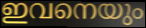
ഇവനെയും